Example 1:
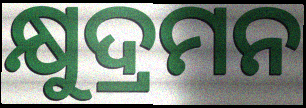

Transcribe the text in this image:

କ୍ଷୁଦ୍ରମନ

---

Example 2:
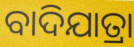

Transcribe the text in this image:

ବାଦିଯାତ୍ରା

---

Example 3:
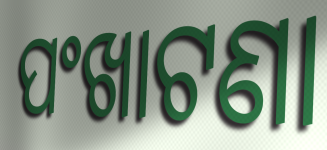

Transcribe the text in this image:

ପଂଖାଟଣା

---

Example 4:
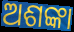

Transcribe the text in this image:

ଅଶଙ୍କା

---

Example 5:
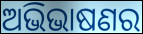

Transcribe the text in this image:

ଅଭିଭାଷଣର